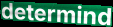
determind